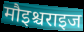
मौइश्चराइज